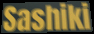
Sashiki